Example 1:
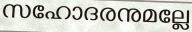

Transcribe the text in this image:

സഹോദരനുമല്ലേ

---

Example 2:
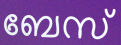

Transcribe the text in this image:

ബേസ്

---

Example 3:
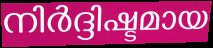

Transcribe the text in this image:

നിർദ്ദിഷ്ടമായ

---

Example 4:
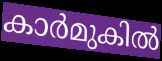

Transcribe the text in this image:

കാർമുകിൽ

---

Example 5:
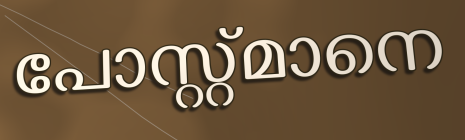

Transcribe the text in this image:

പോസ്റ്റ്മാനെ